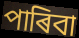
পাৰিবা